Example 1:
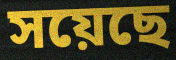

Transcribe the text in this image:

সয়েছে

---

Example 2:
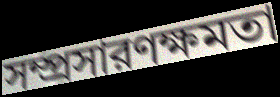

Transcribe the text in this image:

সম্প্রসারণক্ষমতা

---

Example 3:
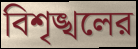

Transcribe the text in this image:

বিশৃঙ্খলের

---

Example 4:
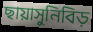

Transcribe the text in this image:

ছায়াসুনিবিড়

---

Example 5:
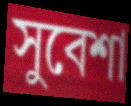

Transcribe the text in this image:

সুবেশা